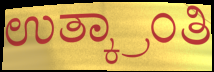
ಉತ್ಕ್ರಾಂತಿ